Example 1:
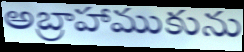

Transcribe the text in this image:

అబ్రాహాముకును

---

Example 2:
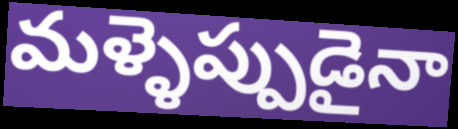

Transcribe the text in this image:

మళ్ళెప్పుడైనా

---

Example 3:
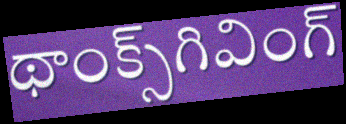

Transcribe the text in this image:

థాంక్స్‌గివింగ్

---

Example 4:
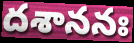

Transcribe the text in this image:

దశాననః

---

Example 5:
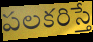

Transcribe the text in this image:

పలకరిస్తే